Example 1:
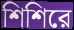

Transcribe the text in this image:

শিশিরে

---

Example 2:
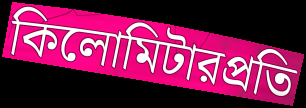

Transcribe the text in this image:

কিলোমিটারপ্রতি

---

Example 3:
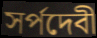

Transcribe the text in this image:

সর্পদেবী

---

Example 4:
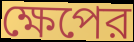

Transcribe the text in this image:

ক্ষেপের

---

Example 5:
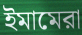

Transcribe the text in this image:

ইমামেরা